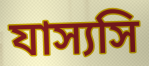
যাস্যসি